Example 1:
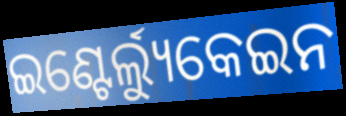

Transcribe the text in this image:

ଇଣ୍ଟେର୍ଲ୍ୟୁକେଇନ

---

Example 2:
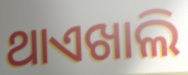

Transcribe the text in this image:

ଥାଏଖାଲି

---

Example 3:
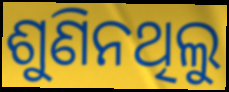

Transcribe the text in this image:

ଶୁଣିନଥିଲୁ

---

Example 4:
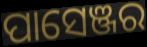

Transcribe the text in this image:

ପାସେଞ୍ଜର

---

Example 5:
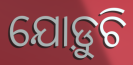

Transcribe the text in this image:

ଯୋଡ଼ୁଚି